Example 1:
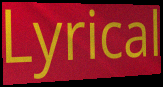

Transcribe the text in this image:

Lyrical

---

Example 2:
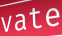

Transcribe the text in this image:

vate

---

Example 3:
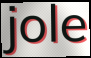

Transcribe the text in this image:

jole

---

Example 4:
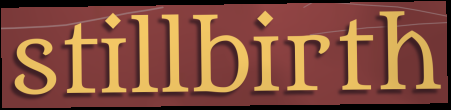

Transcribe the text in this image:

stillbirth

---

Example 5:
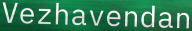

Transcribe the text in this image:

Vezhavendan